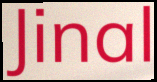
Jinal